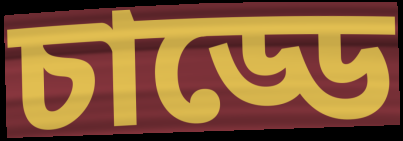
চাড্ডে